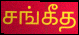
சங்கீத